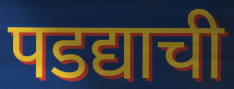
पडद्याची